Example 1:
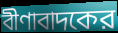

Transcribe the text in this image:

বীণাবাদকের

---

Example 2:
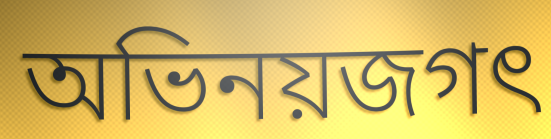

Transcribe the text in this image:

অভিনয়জগৎ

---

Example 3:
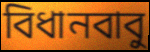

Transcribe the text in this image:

বিধানবাবু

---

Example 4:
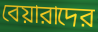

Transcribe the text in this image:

বেয়ারাদের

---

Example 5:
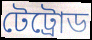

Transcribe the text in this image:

টেট্রোড